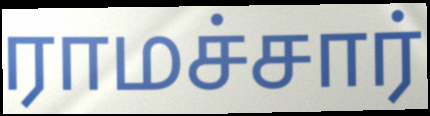
ராமச்சார்